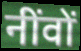
नींवों